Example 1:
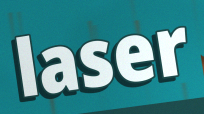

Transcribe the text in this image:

laser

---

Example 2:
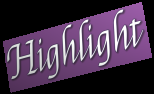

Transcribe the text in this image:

Highlight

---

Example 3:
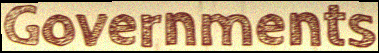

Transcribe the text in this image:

Governments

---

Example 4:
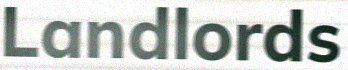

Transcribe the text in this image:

Landlords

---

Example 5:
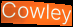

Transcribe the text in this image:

Cowley